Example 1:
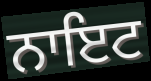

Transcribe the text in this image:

ਨਾਇਟ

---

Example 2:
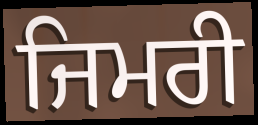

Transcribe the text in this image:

ਜਿਮਰੀ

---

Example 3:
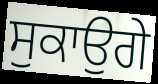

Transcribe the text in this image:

ਸੁਕਾਉਗੇ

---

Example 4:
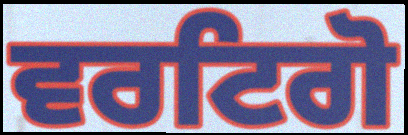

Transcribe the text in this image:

ਵਰਟਿਗੋ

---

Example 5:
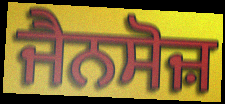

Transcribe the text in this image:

ਜੈਨਸੋਜ਼